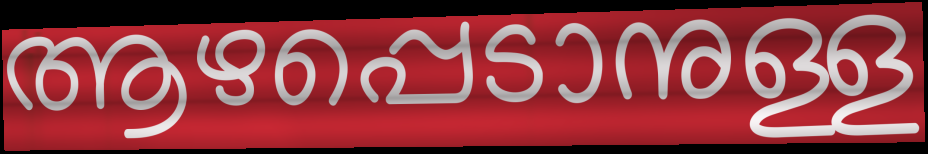
ആഴപ്പെടാനുള്ള